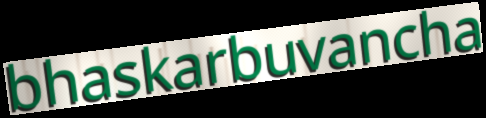
bhaskarbuvancha